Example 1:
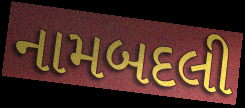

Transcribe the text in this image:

નામબદલી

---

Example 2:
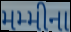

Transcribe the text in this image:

મમ્મીના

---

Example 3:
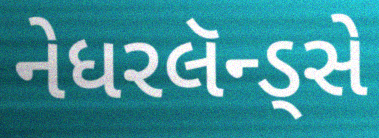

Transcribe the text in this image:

નેધરલૅન્ડ્સે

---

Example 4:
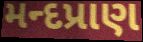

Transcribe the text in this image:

મન્દપ્રાણ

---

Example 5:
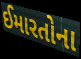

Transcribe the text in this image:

ઈમારતોના